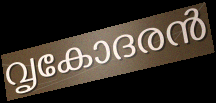
വൃകോദരൻ